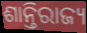
ଶାନ୍ତିରାଜ୍ୟ